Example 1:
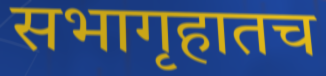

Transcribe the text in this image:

सभागृहातच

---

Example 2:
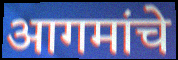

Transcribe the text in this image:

आगमांचे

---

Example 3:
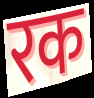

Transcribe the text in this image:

रक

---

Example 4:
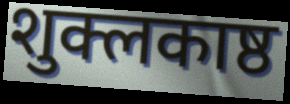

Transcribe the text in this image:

शुक्लकाष्ठ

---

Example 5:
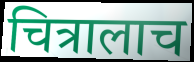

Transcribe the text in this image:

चित्रालाच